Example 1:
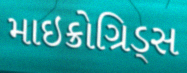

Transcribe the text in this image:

માઇક્રોગ્રિડ્સ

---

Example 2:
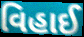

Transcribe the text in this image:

વિહાઈ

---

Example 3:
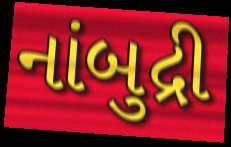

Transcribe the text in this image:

નાંબુદ્રી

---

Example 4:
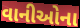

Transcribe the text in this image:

વાનીઓના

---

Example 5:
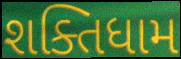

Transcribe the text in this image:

શક્તિધામ